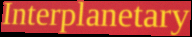
Interplanetary